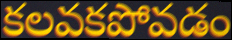
కలవకపోవడం